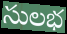
సులభ